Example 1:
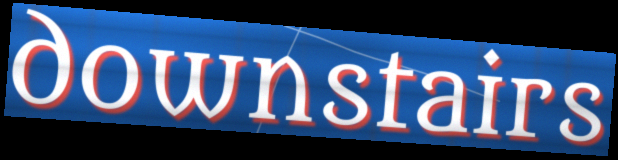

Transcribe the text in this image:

downstairs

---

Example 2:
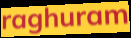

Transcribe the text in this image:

raghuram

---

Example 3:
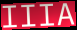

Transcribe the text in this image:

IIIA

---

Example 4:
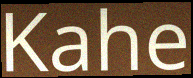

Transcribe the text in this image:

Kahe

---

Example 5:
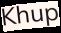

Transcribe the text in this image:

Khup